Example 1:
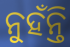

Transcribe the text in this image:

ନୁହଁନ୍ତି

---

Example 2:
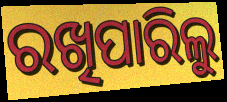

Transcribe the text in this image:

ରଖିପାରିଲୁ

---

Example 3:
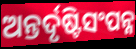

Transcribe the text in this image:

ଅନ୍ତର୍ଦୃଷ୍ଟିସଂପନ୍ନ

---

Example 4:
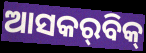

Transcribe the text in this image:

ଆସକର୍‌ବିକ୍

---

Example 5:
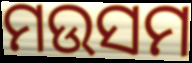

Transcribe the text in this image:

ମଉସମ